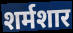
शर्मशार